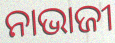
ନାଭାଜୀ